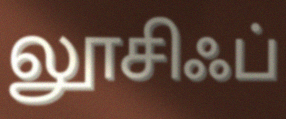
லூசிஃப்